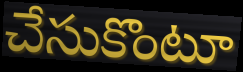
చేసుకొంటూ